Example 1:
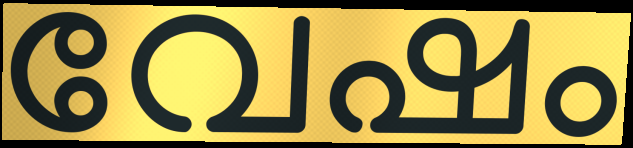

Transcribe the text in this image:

വേഷം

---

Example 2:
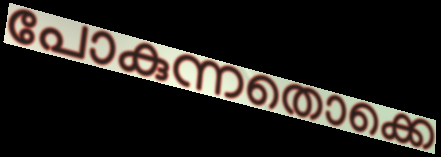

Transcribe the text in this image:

പോകുന്നതൊക്കെ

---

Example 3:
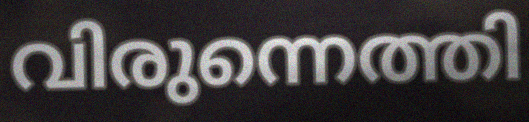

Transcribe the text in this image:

വിരുന്നെത്തി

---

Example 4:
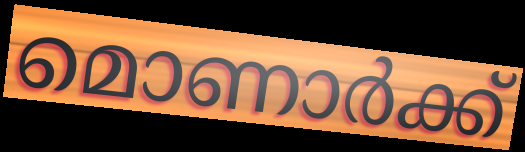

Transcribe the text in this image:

മൊണാർക്ക്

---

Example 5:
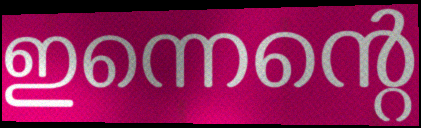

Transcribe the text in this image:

ഇന്നെന്റെ